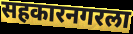
सहकारनगरला